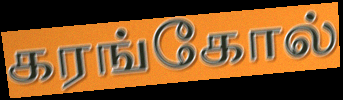
கரங்கோல்